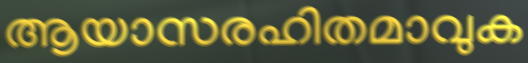
ആയാസരഹിതമാവുക